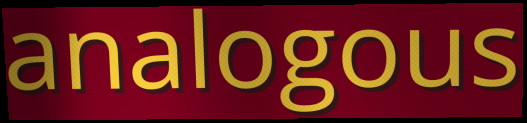
analogous